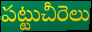
పట్టుచీరెలు